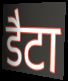
डैटा